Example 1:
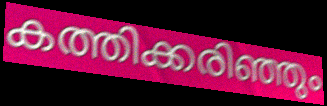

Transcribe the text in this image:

കത്തിക്കരിഞ്ഞും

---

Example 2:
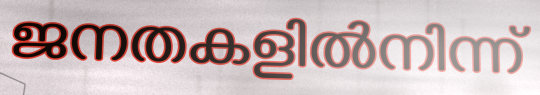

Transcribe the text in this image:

ജനതകളിൽനിന്ന്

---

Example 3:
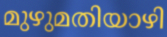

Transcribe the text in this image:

മുഴുമതിയാഴി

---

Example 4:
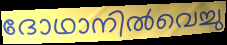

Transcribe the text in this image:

ദോഥാനിൽവെച്ചു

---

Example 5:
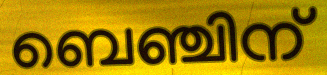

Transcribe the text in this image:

ബെഞ്ചിന്